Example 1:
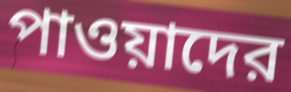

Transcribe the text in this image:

পাওয়াদের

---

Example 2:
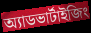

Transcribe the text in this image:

অ্যাডভার্টাইজিং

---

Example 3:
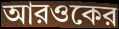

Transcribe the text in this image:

আরওকের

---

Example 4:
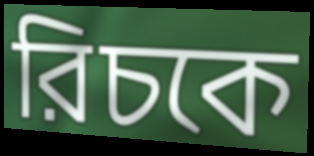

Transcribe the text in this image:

রিচকে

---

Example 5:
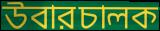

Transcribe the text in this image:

উবারচালক